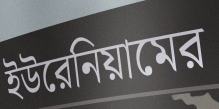
ইউরেনিয়ামের